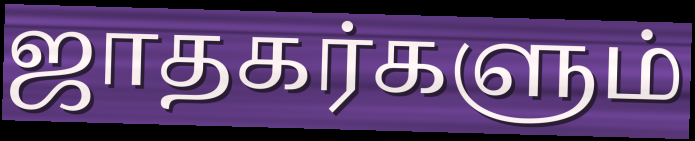
ஜாதகர்களும்